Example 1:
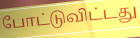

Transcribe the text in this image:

போட்டுவிட்டது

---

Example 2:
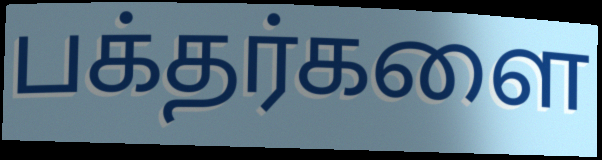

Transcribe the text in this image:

பக்தர்களை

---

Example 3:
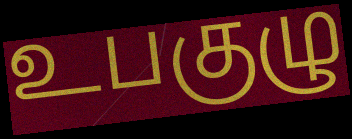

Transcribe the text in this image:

உபகுழு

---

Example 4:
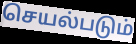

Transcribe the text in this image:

செயல்படும்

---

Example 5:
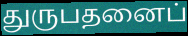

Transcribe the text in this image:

துருபதனைப்